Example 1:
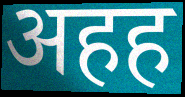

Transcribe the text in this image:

अहह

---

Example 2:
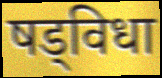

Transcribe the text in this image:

षड्विधा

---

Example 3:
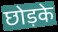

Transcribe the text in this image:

छोड़के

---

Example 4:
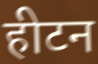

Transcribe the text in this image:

हीटन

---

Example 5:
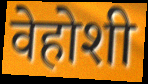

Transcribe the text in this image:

वेहोशी